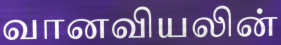
வானவியலின்